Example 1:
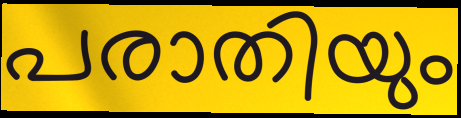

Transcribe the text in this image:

പരാതിയും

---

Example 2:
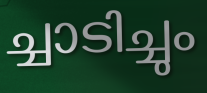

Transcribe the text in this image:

ച്ചാടിച്ചും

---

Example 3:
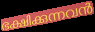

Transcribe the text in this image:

ഭക്ഷിക്കുന്നവൻ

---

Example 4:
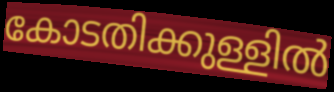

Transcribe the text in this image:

കോടതിക്കുള്ളിൽ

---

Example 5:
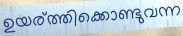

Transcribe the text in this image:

ഉയര്ത്തിക്കൊണ്ടുവന്ന